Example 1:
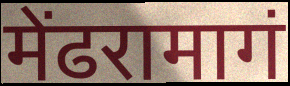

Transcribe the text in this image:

मेंढरामागं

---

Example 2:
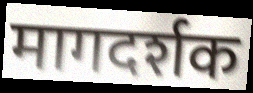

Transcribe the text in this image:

मागदर्शक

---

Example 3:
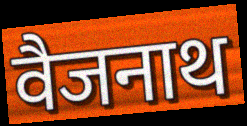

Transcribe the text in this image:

वैजनाथ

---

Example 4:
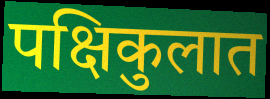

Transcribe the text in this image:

पक्षिकुलात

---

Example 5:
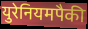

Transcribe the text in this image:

युरेनियमपैकी